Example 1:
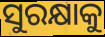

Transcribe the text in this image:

ସୁରକ୍ଷାକୁ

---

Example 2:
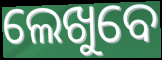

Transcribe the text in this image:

ଲେଖୁବେ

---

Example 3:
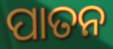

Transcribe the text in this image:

ପାତନ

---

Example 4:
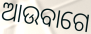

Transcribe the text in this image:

ଆଉବାଗେ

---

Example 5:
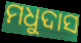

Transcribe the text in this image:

ମଧୁଦାସ